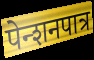
पेन्शनपात्र